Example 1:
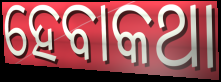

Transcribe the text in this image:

ହେବାକଥା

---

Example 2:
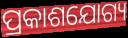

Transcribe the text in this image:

ପ୍ରକାଶଯୋଗ୍ୟ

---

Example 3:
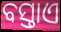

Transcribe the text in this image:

ବସ୍ତାଏ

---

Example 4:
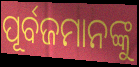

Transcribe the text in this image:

ପୂର୍ବଜମାନଙ୍କୁ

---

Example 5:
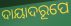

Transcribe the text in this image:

ଦାୟାଦରୂପେ